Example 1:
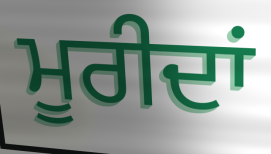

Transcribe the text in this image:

ਮੂਰੀਦਾਂ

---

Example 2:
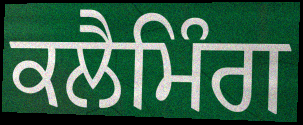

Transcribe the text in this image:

ਕਲੈਮਿੰਗ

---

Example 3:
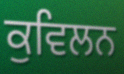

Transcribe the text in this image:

ਕੁਵਿਲਨ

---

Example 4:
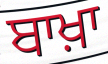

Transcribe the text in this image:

ਬਾਖ਼ਾ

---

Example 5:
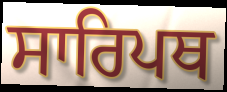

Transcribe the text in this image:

ਸਾਰਿਪਥ